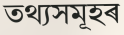
তথ্যসমূহৰ